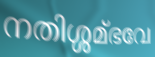
നതിശ്ശമ്ഭവേ